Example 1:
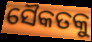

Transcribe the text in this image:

ସୈକତକୁ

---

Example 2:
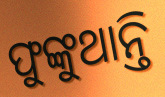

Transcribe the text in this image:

ଫୁଙ୍କୁଥାନ୍ତି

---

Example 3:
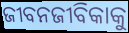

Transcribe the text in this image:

ଜୀବନଜୀବିକାକୁ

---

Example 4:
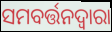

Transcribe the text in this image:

ସମବର୍ତ୍ତନଦ୍ୱାରା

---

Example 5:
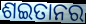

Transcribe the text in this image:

ଶଇତାନର